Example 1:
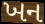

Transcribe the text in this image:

ખન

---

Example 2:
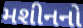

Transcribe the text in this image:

મશીનનો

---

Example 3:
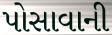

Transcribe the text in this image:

પોસાવાની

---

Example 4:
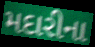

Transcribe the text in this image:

મદારીના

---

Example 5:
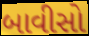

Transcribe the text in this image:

બાવીસો